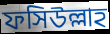
ফসিউল্লাহ